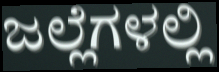
ಜಲ್ಲೆಗಳಲ್ಲಿ